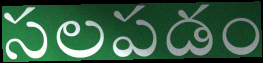
సలపడం